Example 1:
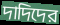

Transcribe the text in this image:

দাদিদের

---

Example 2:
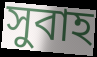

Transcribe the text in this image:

সুবাহ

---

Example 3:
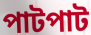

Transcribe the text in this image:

পাটপাট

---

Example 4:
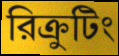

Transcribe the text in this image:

রিক্রুটিং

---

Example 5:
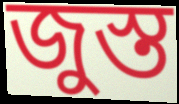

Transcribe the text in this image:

জুস্ত